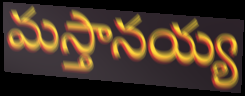
మస్తానయ్య